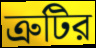
ত্রুটির